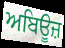
ਅਬਿਊਜ਼